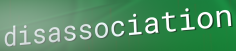
disassociation